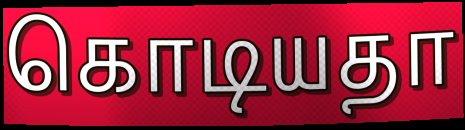
கொடியதா